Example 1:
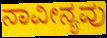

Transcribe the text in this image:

ನಾವೀನ್ಯವು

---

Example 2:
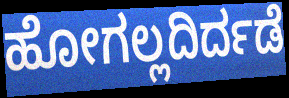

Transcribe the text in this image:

ಹೋಗಲ್ಲದಿರ್ದಡೆ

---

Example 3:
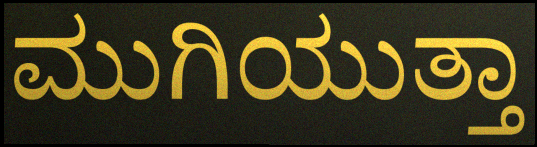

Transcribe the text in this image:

ಮುಗಿಯುತ್ತಾ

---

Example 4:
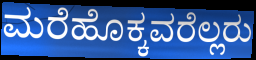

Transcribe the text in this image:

ಮರೆಹೊಕ್ಕವರೆಲ್ಲರು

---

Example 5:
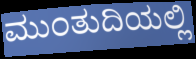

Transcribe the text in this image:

ಮುಂತುದಿಯಲ್ಲಿ